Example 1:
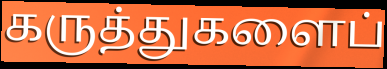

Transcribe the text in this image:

கருத்துகளைப்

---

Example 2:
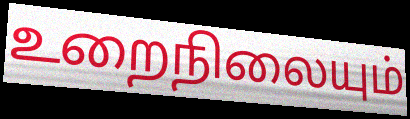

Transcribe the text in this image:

உறைநிலையும்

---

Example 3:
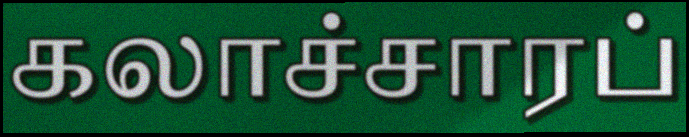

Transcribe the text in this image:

கலாச்சாரப்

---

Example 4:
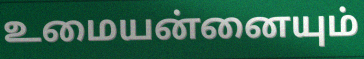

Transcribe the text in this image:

உமையன்னையும்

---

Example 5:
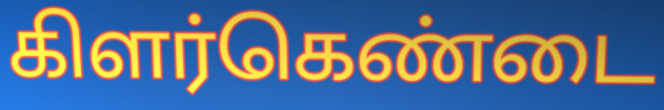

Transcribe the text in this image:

கிளர்கெண்டை